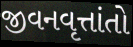
જીવનવૃત્તાંતો